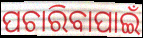
ପଚାରିବାପାଇଁ